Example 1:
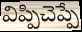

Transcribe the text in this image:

విప్పిచెప్పే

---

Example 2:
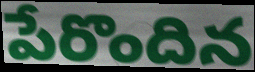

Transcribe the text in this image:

పేరొందిన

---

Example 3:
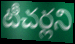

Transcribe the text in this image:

టీచర్లని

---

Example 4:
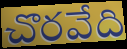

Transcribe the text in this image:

చొరవేది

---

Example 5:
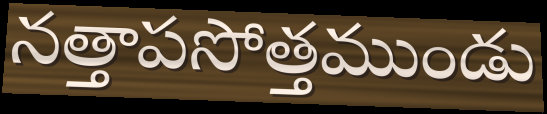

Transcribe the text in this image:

నత్తాపసోత్తముండు